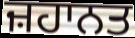
ਜ਼ਹਾਨਤ